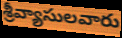
శ్రీవ్యాసులవారు